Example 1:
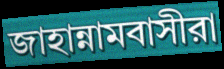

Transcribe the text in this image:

জাহান্নামবাসীরা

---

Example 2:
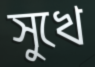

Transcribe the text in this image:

সুখে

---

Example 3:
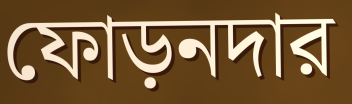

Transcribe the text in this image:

ফোড়নদার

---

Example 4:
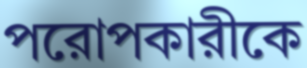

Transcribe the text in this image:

পরোপকারীকে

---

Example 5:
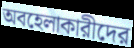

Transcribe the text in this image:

অবহেলাকারীদের